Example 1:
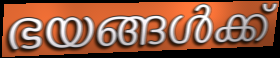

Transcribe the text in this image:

ഭയങ്ങൾക്ക്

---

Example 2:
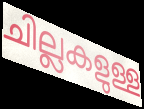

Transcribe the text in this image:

ചില്ലകളുള്ള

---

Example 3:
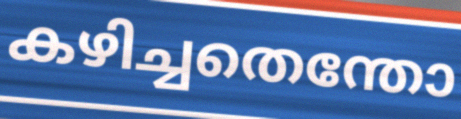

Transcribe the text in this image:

കഴിച്ചതെന്തോ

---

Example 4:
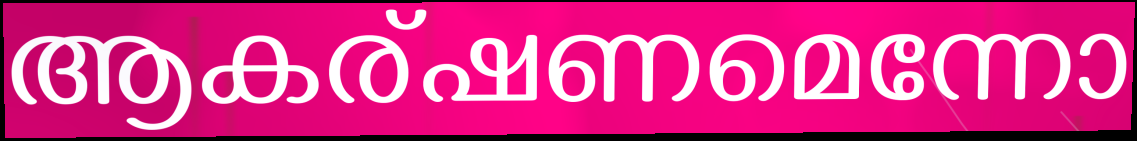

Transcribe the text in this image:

ആകര്ഷണമെന്നോ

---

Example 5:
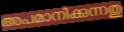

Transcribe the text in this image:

അപമാനിക്കുന്നതു